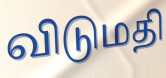
விடுமதி